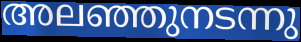
അലഞ്ഞുനടന്നു